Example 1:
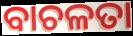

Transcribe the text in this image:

ବାଚଳତା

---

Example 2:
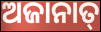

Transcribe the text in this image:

ଅଜାନାତ୍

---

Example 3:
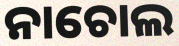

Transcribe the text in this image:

ନାଚୋଲ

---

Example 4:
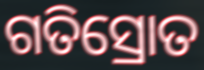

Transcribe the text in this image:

ଗତିସ୍ରୋତ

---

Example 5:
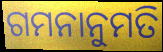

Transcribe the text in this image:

ଗମନାନୁମତି